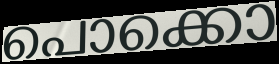
പൊക്കൊ